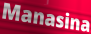
Manasina